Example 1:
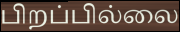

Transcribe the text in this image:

பிறப்பில்லை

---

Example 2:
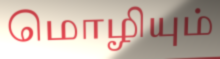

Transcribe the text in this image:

மொழியும்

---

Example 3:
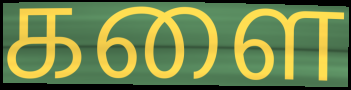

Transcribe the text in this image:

களை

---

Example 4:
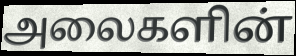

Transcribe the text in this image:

அலைகளின்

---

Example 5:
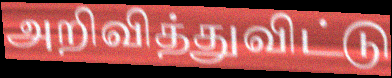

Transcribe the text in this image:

அறிவித்துவிட்டு